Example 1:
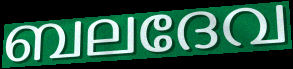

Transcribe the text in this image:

ബലദേവ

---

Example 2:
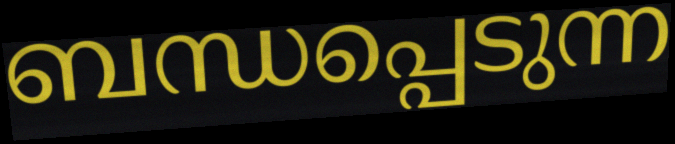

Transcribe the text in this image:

ബന്ധപ്പെടുന്ന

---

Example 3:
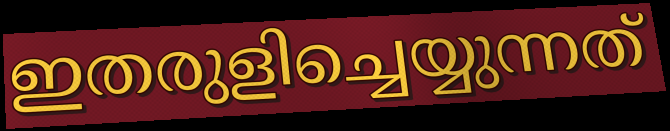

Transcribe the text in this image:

ഇതരുളിച്ചെയ്യുന്നത്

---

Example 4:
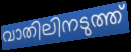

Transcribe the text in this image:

വാതിലിനടുത്ത്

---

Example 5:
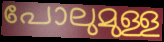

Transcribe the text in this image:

പോലുമുള്ള